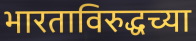
भारताविरुद्धच्या